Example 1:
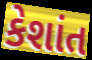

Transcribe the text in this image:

કેશાંત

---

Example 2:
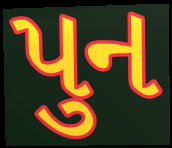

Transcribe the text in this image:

પુન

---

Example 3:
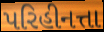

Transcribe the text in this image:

પરિહીનત્તા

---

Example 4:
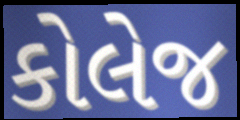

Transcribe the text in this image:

કોલેજ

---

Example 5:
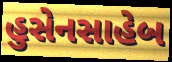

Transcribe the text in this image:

હુસેનસાહેબ